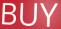
BUY